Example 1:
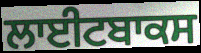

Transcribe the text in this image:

ਲਾਈਟਬਾਕਸ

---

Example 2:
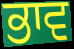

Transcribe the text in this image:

ਭਾਵ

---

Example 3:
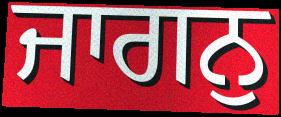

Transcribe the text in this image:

ਜਾਗਨੁ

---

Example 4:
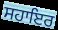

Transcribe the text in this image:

ਸਹਾਇਰ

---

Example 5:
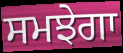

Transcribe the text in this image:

ਸਮਝੇਗਾ